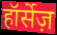
हॉर्सेज़